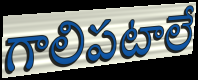
గాలిపటాలే